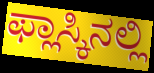
ಫ್ಲಾಸ್ಕಿನಲ್ಲಿ